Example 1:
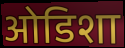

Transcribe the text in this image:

ओडिशा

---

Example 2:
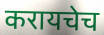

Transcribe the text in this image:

करायचेच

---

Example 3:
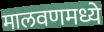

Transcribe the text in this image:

मालवणमध्ये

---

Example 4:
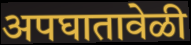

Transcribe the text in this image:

अपघातावेळी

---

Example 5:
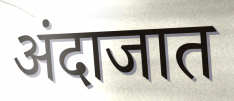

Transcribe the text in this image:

अंदाजात